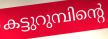
കട്ടുറുമ്പിന്റെ